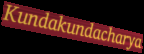
Kundakundacharya